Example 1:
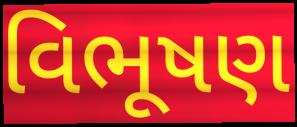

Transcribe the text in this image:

વિભૂષણ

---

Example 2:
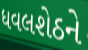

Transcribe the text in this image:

ધવલશેઠને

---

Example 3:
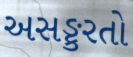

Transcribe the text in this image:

અસઙ્કરતો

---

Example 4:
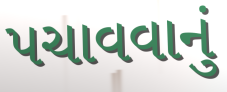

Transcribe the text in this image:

પચાવવાનું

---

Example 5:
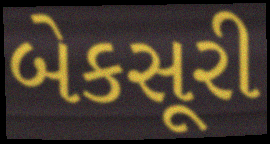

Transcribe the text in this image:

બેકસૂરી